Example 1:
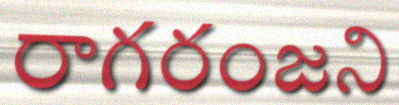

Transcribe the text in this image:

రాగరంజని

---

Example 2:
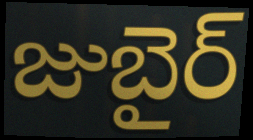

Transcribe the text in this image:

జుబైర్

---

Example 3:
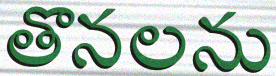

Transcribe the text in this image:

తొనలను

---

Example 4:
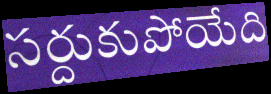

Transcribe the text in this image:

సర్దుకుపోయేది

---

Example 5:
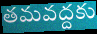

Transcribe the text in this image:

తమవద్దకు